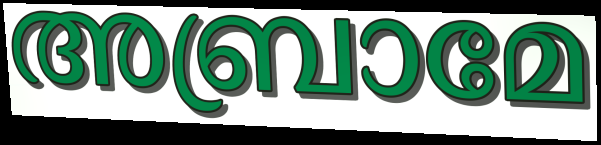
അബ്രാമേ